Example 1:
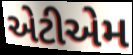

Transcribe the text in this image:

એટીએમ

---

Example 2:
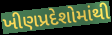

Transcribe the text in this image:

ખીણપ્રદેશોમાંથી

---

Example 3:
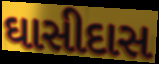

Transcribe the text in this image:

ઘાસીદાસ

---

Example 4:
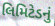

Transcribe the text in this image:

લિમિટેડનું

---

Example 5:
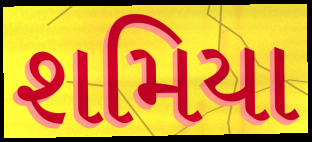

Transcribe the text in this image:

શમિયા